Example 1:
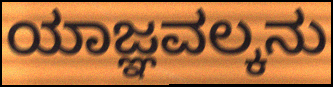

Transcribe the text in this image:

ಯಾಜ್ಞವಲ್ಕನು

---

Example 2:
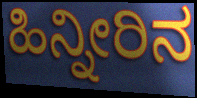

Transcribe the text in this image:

ಹಿನ್ನೀರಿನ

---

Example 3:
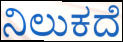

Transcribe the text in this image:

ನಿಲುಕದೆ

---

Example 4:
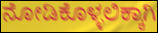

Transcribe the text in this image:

ನೋಡಿಕೊಳ್ಳಲಿಕ್ಕಾಗಿ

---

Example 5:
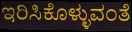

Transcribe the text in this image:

ಇರಿಸಿಕೊಳ್ಳುವಂತೆ